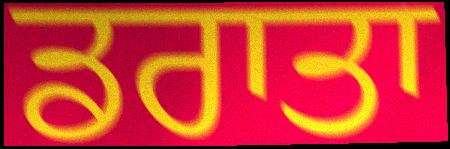
ਡਰਾਤਾ